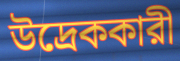
উদ্রেককারী